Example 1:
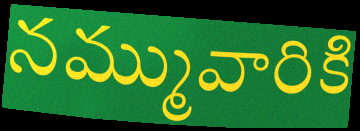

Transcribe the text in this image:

నమ్మువారికి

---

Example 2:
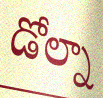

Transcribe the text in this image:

డోల్నా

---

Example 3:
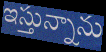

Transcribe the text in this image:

ఇస్తున్నాను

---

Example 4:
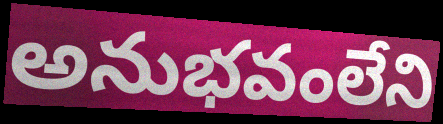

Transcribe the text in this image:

అనుభవంలేని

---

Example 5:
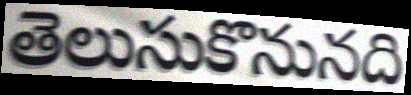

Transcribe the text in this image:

తెలుసుకొనునది